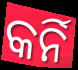
କର୍ନି